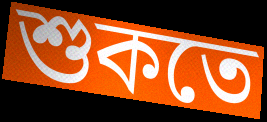
শুকতে